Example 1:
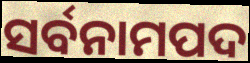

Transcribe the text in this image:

ସର୍ବନାମପଦ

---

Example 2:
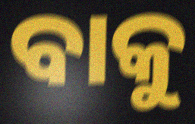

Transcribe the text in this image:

ବାକୁ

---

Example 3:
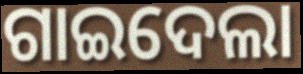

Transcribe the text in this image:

ଗାଇଦେଲା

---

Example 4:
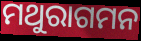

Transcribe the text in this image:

ମଥୁରାଗମନ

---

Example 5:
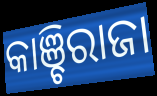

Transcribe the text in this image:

କାଞ୍ଚିରାଜା